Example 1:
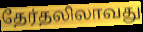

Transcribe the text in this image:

தேர்தலிலாவது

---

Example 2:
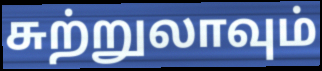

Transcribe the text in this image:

சுற்றுலாவும்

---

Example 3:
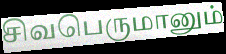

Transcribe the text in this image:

சிவபெருமானும்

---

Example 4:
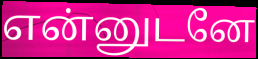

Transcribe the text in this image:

என்னுடனே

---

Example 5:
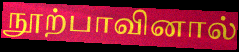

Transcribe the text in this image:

நூற்பாவினால்